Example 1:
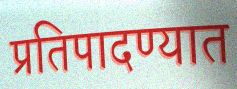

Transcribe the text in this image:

प्रतिपादण्यात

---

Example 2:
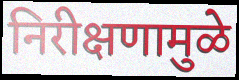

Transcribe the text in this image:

निरीक्षणामुळे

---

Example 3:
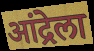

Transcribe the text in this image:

आंद्रेला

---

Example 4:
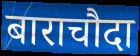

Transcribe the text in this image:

बाराचौदा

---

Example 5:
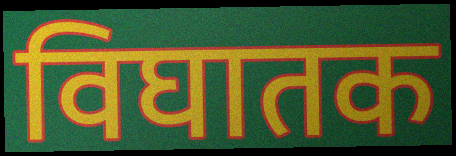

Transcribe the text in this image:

विघातक